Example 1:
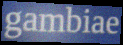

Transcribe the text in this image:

gambiae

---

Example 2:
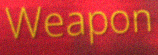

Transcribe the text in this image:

Weapon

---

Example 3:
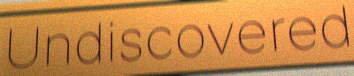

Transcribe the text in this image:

Undiscovered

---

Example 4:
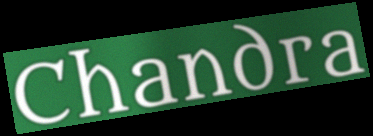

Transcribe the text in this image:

Chandra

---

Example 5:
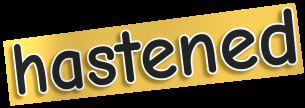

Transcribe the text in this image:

hastened